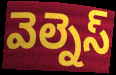
వెల్నెస్